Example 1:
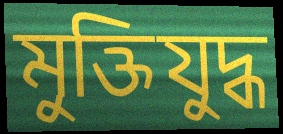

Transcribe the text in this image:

মুক্তিযুদ্ধ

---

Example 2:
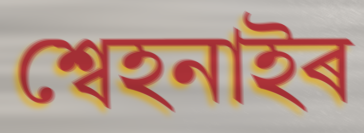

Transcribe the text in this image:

শ্বেহনাইৰ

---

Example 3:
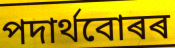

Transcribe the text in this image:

পদাৰ্থবোৰৰ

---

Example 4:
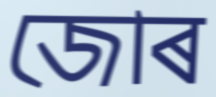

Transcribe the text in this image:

জোৰ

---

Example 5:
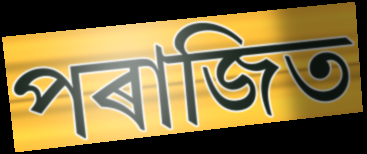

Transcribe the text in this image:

পৰাজিত